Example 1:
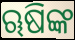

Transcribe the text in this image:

ୠଷିଙ୍କ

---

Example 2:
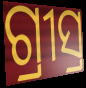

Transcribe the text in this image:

ଗ୍ରୀସ୍ର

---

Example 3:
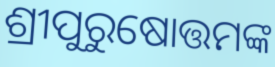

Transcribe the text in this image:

ଶ୍ରୀପୁରୁଷୋତ୍ତମଙ୍କ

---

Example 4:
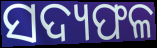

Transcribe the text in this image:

ସଦ୍ୟଫଳ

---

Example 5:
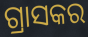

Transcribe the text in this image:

ଗ୍ରାସକର